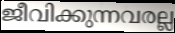
ജീവിക്കുന്നവരല്ല